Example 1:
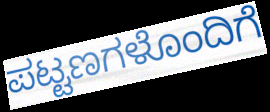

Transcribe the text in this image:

ಪಟ್ಟಣಗಳೊಂದಿಗೆ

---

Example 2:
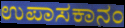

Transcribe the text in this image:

ಉಪಾಸಕಾನಂ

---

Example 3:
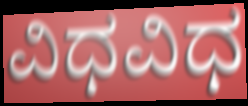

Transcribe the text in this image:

ವಿಧವಿಧ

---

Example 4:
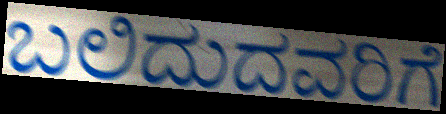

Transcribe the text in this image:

ಬಲಿದುದವರಿಗೆ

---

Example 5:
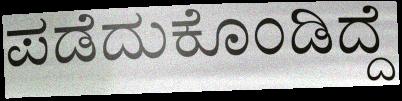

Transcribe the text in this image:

ಪಡೆದುಕೊಂಡಿದ್ದೆ